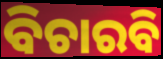
ବିଚାରବି